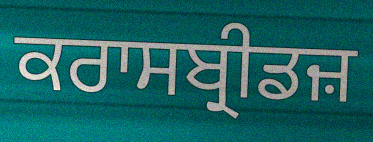
ਕਰਾਸਬ੍ਰੀਡਜ਼